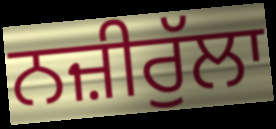
ਨਜ਼ੀਰੁੱਲਾ